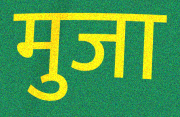
मुजा